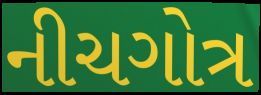
નીચગોત્ર